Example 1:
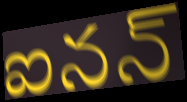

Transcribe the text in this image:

ఐనన్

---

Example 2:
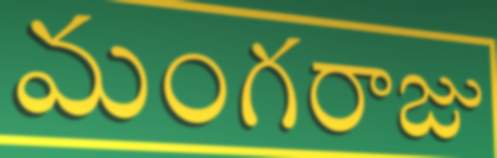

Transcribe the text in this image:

మంగరాజు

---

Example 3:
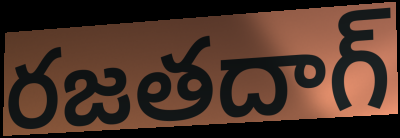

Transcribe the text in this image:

రజతదాగ్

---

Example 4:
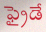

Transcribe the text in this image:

ఫ్రైడే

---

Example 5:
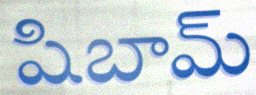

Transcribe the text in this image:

షిబామ్